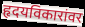
हृदयविकारांवर